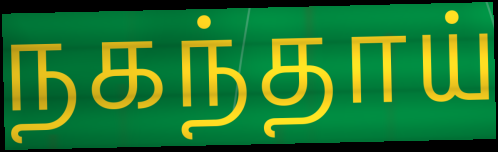
நகந்தாய்